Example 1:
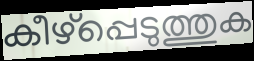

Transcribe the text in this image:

കീഴ്പ്പെടുത്തുക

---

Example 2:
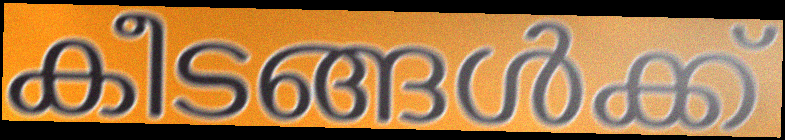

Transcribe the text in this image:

കീടങ്ങൾക്ക്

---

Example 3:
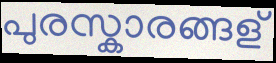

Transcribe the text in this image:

പുരസ്കാരങ്ങള്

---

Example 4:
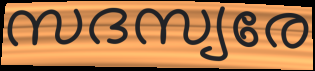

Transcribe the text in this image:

സദസ്യരേ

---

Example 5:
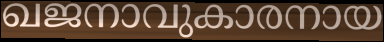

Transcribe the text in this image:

ഖജനാവുകാരനായ